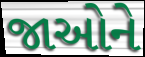
જાઓને